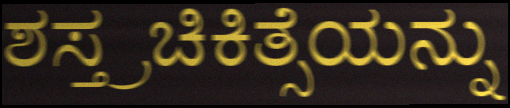
ಶಸ್ತ್ರಚಿಕಿತ್ಸೆಯನ್ನು